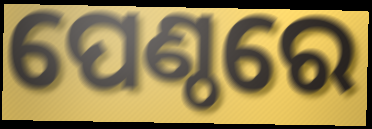
ପେଣ୍ଠରେ